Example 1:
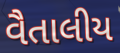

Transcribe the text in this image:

વૈતાલીય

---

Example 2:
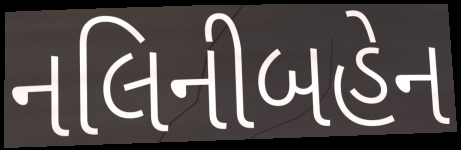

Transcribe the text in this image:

નલિનીબહેન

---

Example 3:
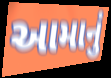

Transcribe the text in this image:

આમાનું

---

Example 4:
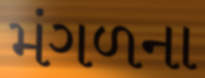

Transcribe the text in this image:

મંગળના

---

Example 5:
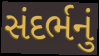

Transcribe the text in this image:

સંદર્ભનું